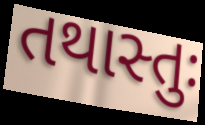
તથાસ્તુઃ